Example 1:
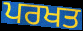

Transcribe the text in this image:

ਪਰਖਤ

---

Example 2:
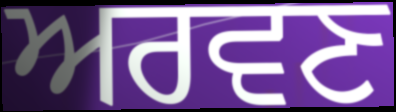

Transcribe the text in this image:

ਅਰਵਣ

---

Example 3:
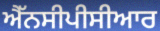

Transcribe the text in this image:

ਐੱਨਸੀਪੀਸੀਆਰ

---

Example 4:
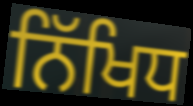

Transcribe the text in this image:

ਨਿੱਖਿਧ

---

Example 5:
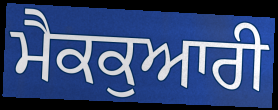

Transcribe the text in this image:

ਮੈਕਕੁਆਰੀ